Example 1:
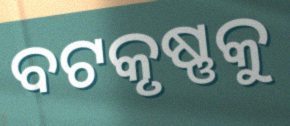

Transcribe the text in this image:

ବଟକୃଷ୍ଣକୁ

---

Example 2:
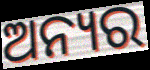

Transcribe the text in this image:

ଅନ୍ୟର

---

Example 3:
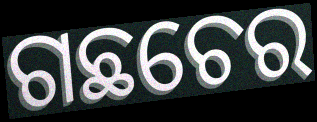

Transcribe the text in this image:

ଗଛଚେର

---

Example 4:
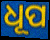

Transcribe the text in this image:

ଧୂପ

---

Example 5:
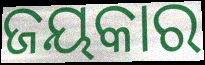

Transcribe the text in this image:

ଜୟକାର